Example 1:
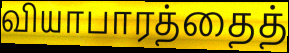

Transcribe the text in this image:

வியாபாரத்தைத்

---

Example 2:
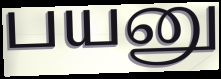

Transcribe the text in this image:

பயனு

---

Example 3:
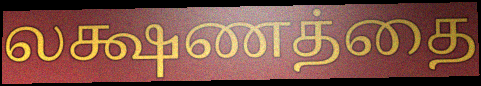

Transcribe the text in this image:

லக்ஷணத்தை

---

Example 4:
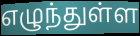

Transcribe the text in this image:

எழுந்துள்ள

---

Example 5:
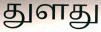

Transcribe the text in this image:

துளது